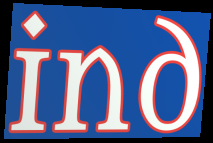
ind